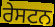
ਰੇਸਟਨ